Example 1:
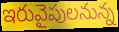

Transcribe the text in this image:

ఇరువైపులనున్న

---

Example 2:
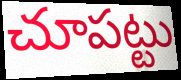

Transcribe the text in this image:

చూపట్టు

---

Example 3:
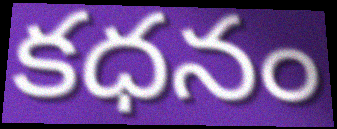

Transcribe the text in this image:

కధనం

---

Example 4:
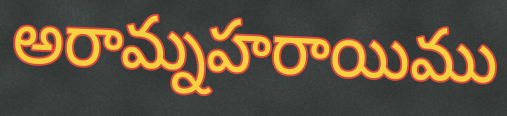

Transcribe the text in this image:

అరామ్నహరాయిము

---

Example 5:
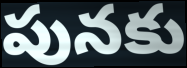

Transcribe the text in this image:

పునకు